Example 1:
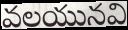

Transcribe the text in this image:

వలయునవి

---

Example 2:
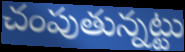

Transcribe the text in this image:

చంపుతున్నట్టు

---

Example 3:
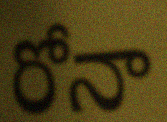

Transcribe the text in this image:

రోనా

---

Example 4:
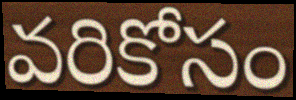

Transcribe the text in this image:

వరికోసం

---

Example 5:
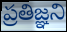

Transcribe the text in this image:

ప్రతిజ్ఞని